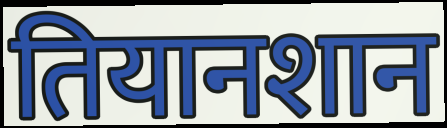
तियानशान